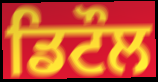
ਡਿਟੌਲ